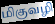
மிகுவழி